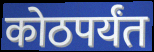
कोठपर्यंत